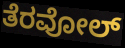
ತೆರವೋಲ್